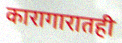
कारागारातही